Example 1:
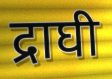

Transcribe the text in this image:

द्राघी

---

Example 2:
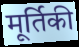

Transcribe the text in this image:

मूर्तिकी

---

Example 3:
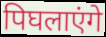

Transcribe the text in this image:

पिघलाएंगे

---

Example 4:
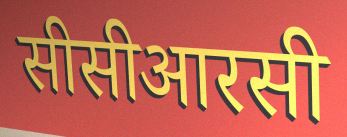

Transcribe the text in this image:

सीसीआरसी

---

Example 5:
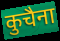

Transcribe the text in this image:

कुचैना